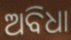
ଅବିଧା